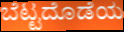
ಬೆಟ್ಟದೊಡೆಯ